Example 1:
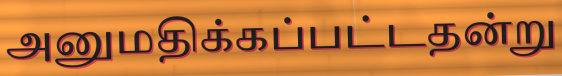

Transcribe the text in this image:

அனுமதிக்கப்பட்டதன்று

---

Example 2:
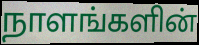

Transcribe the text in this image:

நாளங்களின்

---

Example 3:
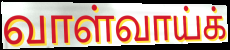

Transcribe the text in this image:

வாள்வாய்க்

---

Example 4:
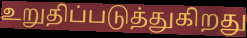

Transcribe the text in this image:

உறுதிப்படுத்துகிறது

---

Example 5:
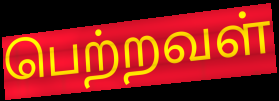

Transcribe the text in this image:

பெற்றவள்